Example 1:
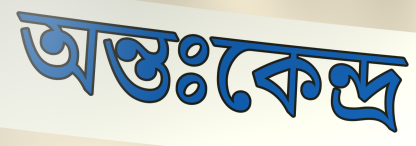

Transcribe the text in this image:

অন্তঃকেন্দ্র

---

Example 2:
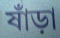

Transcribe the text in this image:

ষাঁড়া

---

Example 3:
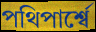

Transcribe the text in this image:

পথিপার্শ্বে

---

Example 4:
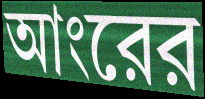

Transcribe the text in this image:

আংরের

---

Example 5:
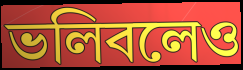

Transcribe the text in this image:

ভলিবলেও